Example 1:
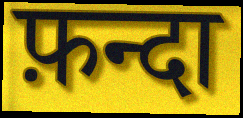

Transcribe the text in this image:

फ़न्दा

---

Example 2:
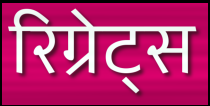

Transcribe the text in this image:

रिग्रेट्स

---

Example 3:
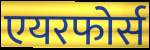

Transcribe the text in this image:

एयरफोर्स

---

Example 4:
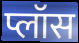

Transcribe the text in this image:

प्लॉस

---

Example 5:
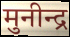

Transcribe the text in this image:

मुनीन्द्र